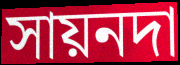
সায়নদা